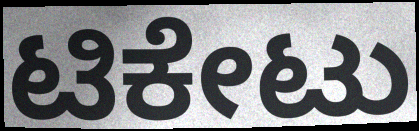
ಟಿಕೇಟು